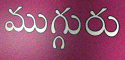
ముగ్గురు